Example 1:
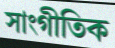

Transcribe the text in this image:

সাংগীতিক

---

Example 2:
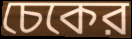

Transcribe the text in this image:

চেকের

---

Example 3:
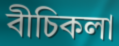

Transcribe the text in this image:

বীচিকলা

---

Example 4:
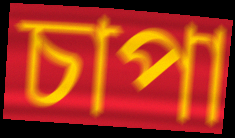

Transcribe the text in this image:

চাপা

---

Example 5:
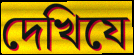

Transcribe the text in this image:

দেখিযে